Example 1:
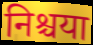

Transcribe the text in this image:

निश्चया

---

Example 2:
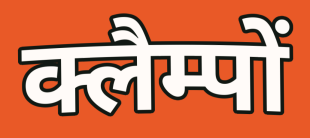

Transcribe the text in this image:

क्लैम्पों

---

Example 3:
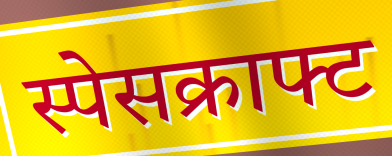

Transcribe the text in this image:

स्‍पेसक्राफ्ट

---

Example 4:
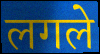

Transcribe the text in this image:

लगले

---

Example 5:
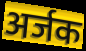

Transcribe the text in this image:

अर्जक